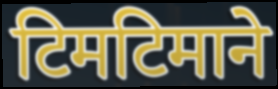
टिमटिमाने